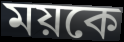
ময়কে